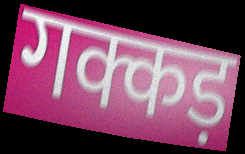
गक्कड़